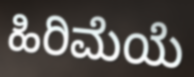
ಹಿರಿಮೆಯೆ